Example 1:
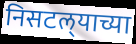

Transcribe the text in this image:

निसटल्याच्या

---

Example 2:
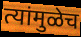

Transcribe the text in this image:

त्यांमुळेच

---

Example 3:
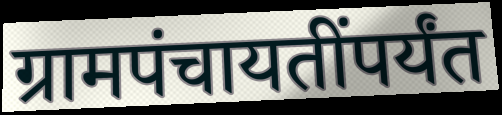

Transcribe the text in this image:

ग्रामपंचायतींपर्यंत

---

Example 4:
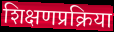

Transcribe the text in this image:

शिक्षणप्रक्रिया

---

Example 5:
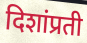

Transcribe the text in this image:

दिशांप्रती